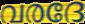
വരദേ